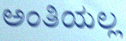
ಅಂತಿಯಲ್ಲ